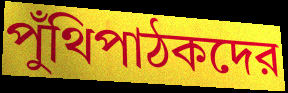
পুঁথিপাঠকদের